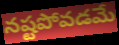
నష్టపోవడమే